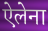
ऐलेना